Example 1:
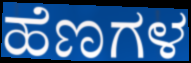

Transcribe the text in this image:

ಹೆಣಗಳ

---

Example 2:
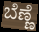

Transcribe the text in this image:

ಬೆಣ್ಣೆ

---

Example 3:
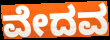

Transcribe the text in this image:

ವೇದವ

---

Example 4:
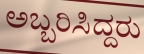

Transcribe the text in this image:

ಅಬ್ಬರಿಸಿದ್ದರು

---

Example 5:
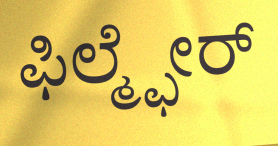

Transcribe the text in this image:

ಫಿಲ್ಮ್ಫೇರ್